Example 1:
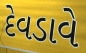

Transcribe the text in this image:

દેવડાવે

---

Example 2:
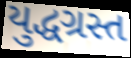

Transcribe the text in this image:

યુદ્ધગ્રસ્ત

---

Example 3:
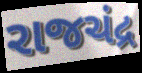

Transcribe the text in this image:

રાજચંદ્ર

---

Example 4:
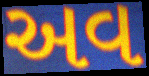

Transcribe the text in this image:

અવ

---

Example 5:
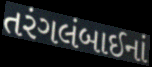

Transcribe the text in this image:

તરંગલંબાઈનાં